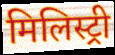
मिलिस्ट्री